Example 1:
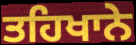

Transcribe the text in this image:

ਤਹਿਖਾਨੇ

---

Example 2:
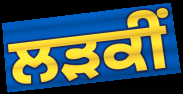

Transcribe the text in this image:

ਲੜਕੀਂ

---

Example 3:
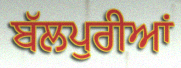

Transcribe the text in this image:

ਬੱਲਪੁਰੀਆਂ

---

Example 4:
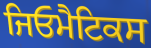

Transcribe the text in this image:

ਜਿਓਮੈਟਿਕਸ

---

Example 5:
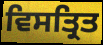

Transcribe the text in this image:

ਵਿਸਤ੍ਰਿਤ